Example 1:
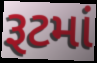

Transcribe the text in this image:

રૂટમાં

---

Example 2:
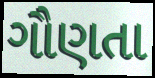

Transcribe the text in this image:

ગૌણતા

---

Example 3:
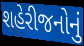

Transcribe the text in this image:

શહેરીજનોનું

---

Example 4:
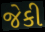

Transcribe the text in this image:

જેકી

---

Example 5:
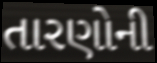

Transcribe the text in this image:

તારણોની